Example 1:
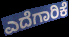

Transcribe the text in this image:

ಎದೆಗಾರಿಕೆ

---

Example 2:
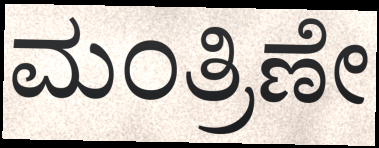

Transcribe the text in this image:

ಮಂತ್ರಿಣೇ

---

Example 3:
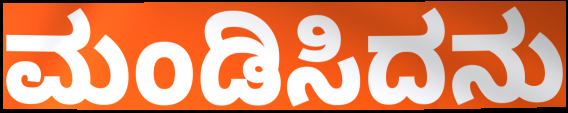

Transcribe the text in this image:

ಮಂಡಿಸಿದನು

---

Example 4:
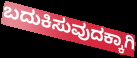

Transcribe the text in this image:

ಬದುಕಿಸುವುದಕ್ಕಾಗಿ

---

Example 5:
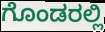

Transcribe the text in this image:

ಗೊಂಡರಲ್ಲಿ